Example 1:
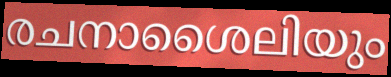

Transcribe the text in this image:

രചനാശൈലിയും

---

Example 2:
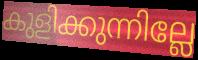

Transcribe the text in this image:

കുളിക്കുന്നില്ലേ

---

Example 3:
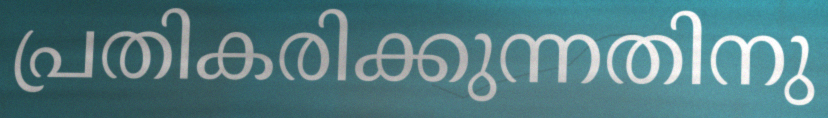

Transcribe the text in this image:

പ്രതികരിക്കുന്നതിനു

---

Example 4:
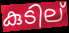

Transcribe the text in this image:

കുടില്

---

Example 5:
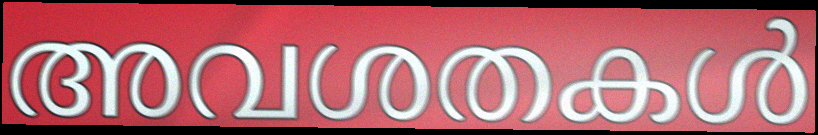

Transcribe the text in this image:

അവശതകൾ